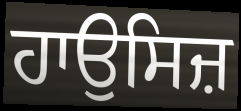
ਹਾਉਸਿਜ਼